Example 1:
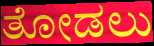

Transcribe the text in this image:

ತೋಡಲು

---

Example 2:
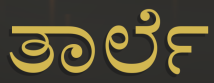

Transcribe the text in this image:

ತಾರ್ಲೆ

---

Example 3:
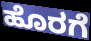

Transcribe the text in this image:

ಹೊರಗೆ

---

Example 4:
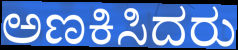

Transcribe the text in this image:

ಅಣಕಿಸಿದರು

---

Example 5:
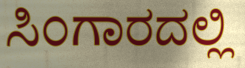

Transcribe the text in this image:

ಸಿಂಗಾರದಲ್ಲಿ